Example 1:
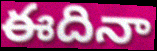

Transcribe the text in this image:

ఈదినా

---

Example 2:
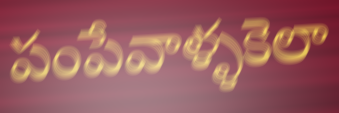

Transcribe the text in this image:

పంపేవాళ్ళకెలా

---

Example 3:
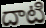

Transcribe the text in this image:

దాటి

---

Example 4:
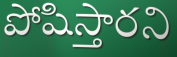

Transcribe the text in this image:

పోషిస్తారని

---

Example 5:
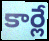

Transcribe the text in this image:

కార్లే